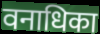
वनाधिका